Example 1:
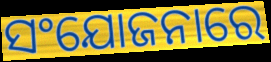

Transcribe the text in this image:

ସଂଯୋଜନାରେ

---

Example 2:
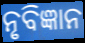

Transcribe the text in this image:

ନୃବିଜ୍ଞାନ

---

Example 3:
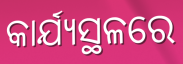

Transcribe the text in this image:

କାର୍ଯ୍ୟସ୍ଥଳରେ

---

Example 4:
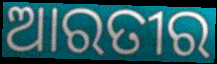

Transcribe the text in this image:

ଆରତୀର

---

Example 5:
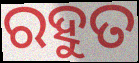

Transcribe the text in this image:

ରହୁତ